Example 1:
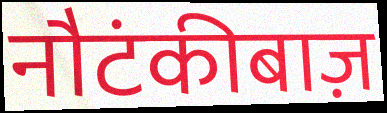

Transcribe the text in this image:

नौटंकीबाज़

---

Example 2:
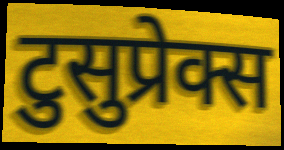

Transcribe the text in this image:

टुसुप्रेक्स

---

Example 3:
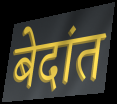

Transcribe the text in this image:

बेदांत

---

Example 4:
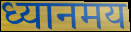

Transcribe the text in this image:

ध्यानमय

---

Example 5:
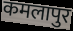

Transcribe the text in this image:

कमलापुर